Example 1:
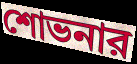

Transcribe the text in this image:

শোভনার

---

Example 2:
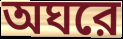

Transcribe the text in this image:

অঘরে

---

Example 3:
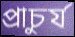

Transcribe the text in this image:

প্রাচুর্য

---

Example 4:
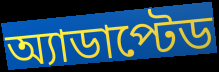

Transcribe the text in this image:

অ্যাডাপ্টেড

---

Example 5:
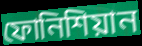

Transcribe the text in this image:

ফোনিশিয়ান